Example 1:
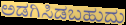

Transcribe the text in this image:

ಅಡಗಿಸಿಡಬಹುದು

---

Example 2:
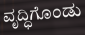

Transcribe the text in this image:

ವೃದ್ಧಿಗೊಂಡು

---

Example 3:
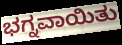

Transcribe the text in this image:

ಭಗ್ನವಾಯಿತು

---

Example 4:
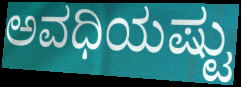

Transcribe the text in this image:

ಅವಧಿಯಷ್ಟು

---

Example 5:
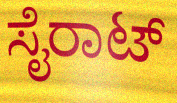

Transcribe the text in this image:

ಸೈರಾಟ್